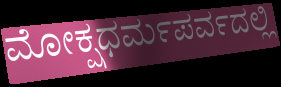
ಮೋಕ್ಷಧರ್ಮಪರ್ವದಲ್ಲಿ